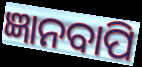
ଜ୍ଞାନବାପି